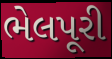
ભેલપૂરી